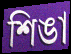
শিঙা